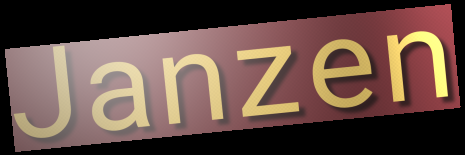
Janzen